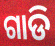
ଗାଡି